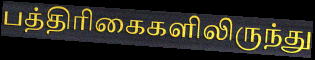
பத்திரிகைகளிலிருந்து